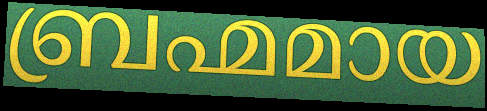
ബ്രഹ്മമായ